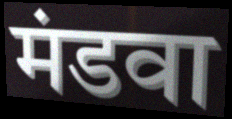
मंडवा